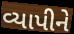
વ્યાપીને